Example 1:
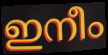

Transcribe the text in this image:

ഇനീം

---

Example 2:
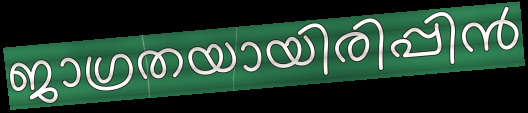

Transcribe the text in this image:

ജാഗ്രതയായിരിപ്പിൻ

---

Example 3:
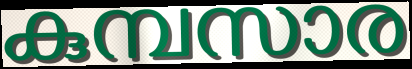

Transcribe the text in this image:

കുമ്പസാര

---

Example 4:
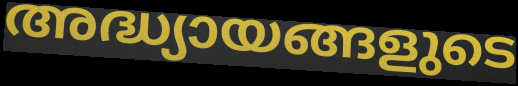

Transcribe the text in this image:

അദ്ധ്യായങ്ങളുടെ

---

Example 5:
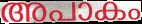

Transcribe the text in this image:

അപാകം